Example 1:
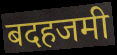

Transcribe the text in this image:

बदहजमी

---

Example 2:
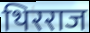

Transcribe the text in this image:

थिरराज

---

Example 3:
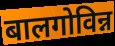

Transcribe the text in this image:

बालगोविन्न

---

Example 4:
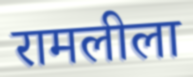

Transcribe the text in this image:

रामलीला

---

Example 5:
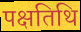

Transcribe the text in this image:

पक्षतिथि